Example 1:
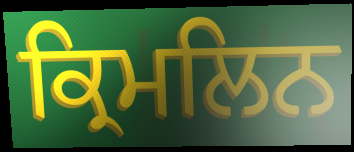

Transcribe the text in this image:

ਕ੍ਰਿਮਲਿਨ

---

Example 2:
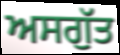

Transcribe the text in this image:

ਅਸਗੁੱਤ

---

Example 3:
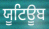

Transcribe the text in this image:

ਯੂਟਿਊਬ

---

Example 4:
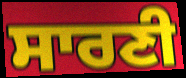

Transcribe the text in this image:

ਸਾਰਣੀ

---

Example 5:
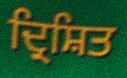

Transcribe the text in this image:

ਦ੍ਰਿਸ਼ਿਤ